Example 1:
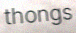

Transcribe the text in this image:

thongs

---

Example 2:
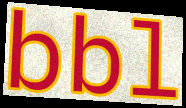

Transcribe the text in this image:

bbl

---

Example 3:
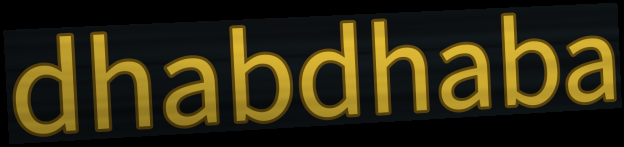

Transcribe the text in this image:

dhabdhaba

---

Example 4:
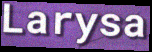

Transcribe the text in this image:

Larysa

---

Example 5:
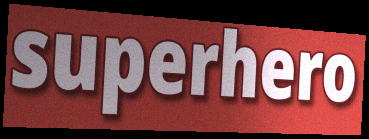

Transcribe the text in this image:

superhero